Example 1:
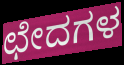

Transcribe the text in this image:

ಛೇದಗಳ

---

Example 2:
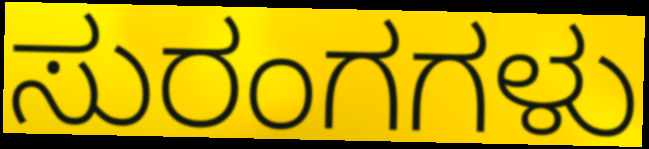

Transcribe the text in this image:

ಸುರಂಗಗಳು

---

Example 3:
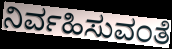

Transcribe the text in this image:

ನಿರ್ವಹಿಸುವಂತೆ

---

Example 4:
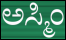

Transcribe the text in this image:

ಅಸ್ಮಿಂ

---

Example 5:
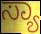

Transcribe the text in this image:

ಸ್ಯಾ